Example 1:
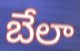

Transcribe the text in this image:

బేలా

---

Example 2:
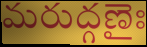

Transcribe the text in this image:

మరుద్గణైః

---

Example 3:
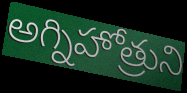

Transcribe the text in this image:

అగ్నిహోత్రుని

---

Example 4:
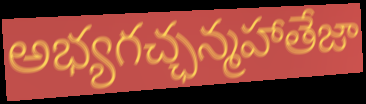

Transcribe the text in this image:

అభ్యగచ్ఛన్మహాతేజా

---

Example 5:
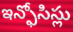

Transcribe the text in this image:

ఇన్ఫోసిస్లు